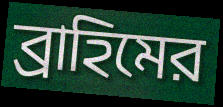
ব্রাহিমের